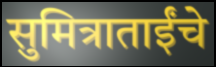
सुमित्राताईंचे